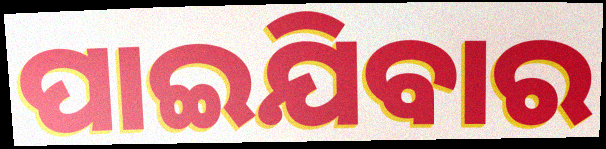
ପାଇଯିବାର